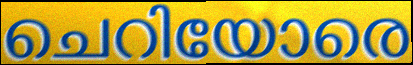
ചെറിയോരെ